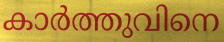
കാർത്തുവിനെ